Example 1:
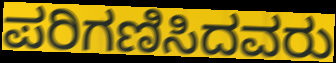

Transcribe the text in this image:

ಪರಿಗಣಿಸಿದವರು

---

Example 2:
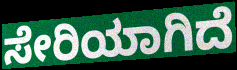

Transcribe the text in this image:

ಸೇರಿಯಾಗಿದೆ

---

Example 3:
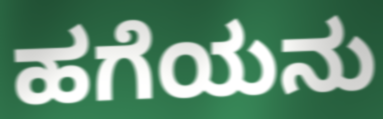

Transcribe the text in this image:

ಹಗೆಯನು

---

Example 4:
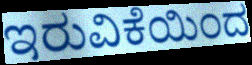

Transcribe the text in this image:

ಇರುವಿಕೆಯಿಂದ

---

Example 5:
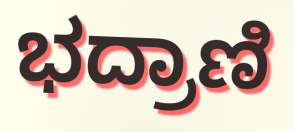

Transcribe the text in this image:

ಭದ್ರಾಣಿ